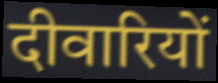
दीवारियों